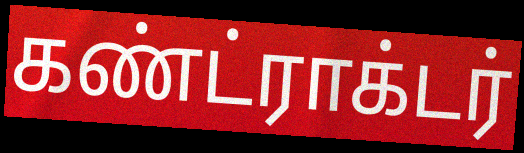
கண்ட்ராக்டர்